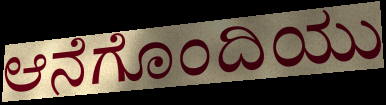
ಆನೆಗೊಂದಿಯು